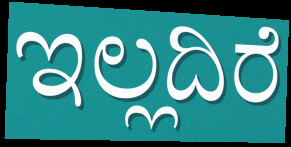
ಇಲ್ಲದಿರೆ